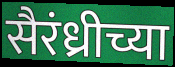
सैरंध्रीच्या